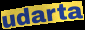
udarta